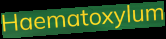
Haematoxylum